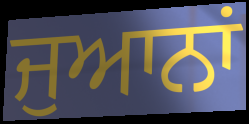
ਜੁਆਨਾਂ